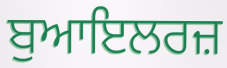
ਬੁਆਇਲਰਜ਼